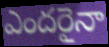
ఎందరైనా